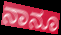
ನಾನೂ